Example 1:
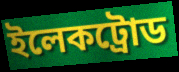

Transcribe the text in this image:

ইলেকট্রোড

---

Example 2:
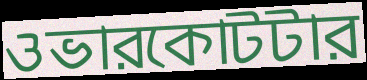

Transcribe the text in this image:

ওভারকোটটার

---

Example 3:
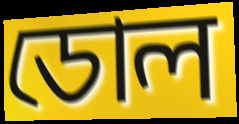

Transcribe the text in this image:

ডোল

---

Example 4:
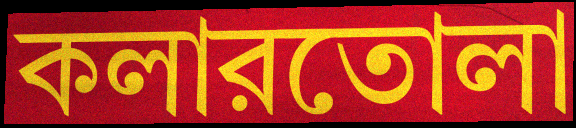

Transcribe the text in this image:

কলারতোলা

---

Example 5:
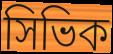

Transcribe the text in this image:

সিভিক